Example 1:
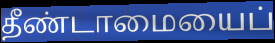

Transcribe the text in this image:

தீண்டாமையைப்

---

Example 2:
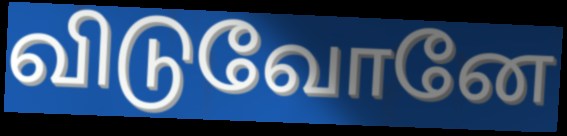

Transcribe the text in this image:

விடுவோனே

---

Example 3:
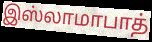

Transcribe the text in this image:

இஸ்லாமாபாத்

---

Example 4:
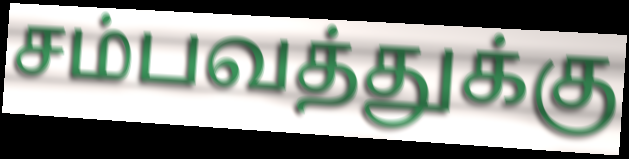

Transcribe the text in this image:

சம்பவத்துக்கு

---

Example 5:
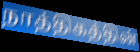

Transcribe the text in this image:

நாத்திகத்தின்